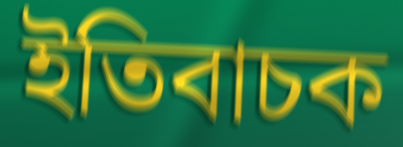
ইতিবাচক